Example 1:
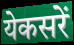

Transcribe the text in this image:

येकसरें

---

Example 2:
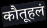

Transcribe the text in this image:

कौतूहलं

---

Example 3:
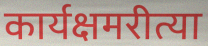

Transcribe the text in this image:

कार्यक्षमरीत्या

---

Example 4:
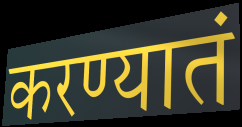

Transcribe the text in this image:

करण्यातं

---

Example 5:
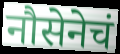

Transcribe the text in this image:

नौसेनेचं